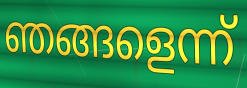
ഞങ്ങളെന്ന്